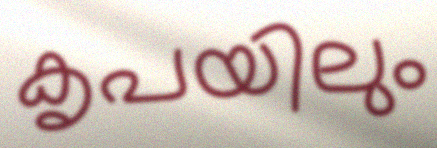
കൃപയിലും